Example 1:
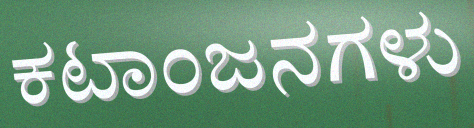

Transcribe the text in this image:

ಕಟಾಂಜನಗಳು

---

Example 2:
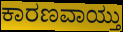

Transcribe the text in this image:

ಕಾರಣವಾಯ್ತು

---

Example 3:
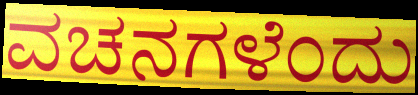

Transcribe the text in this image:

ವಚನಗಳೆಂದು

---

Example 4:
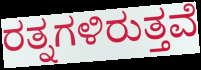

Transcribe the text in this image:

ರತ್ನಗಳಿರುತ್ತವೆ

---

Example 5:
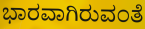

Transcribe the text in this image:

ಭಾರವಾಗಿರುವಂತೆ